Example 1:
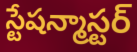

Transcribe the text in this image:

స్టేషన్మాస్టర్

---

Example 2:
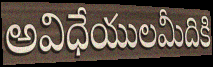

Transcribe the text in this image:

అవిధేయులమీదికి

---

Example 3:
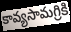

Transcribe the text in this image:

కావ్యసామగ్రికి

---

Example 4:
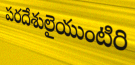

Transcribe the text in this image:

పరదేశులైయుంటిరి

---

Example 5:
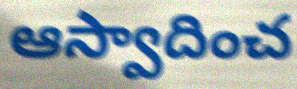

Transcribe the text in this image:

ఆస్వాదించ